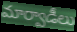
మార్వాడీలు